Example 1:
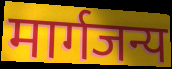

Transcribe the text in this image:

मार्गजन्य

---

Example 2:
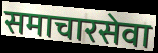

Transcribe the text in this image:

समाचारसेवा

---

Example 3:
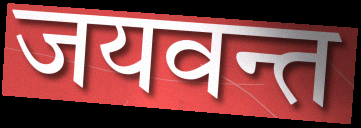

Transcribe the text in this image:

जयवन्त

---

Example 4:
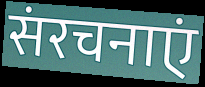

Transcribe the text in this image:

संरचनाएं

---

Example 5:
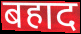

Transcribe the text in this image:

बहाद